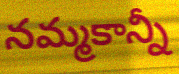
నమ్మకాన్నీ